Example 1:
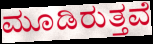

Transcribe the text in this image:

ಮೂಡಿರುತ್ತವೆ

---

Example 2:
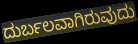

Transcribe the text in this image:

ದುರ್ಬಲವಾಗಿರುವುದು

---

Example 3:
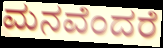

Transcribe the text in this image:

ಮನವೆಂದರೆ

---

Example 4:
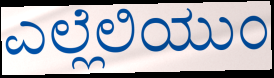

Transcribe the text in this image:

ಎಲ್ಲೆಲಿಯುಂ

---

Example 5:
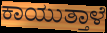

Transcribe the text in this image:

ಕಾಯುತ್ತಾಳೆ